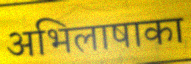
अभिलाषाका